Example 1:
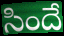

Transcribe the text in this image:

సిందే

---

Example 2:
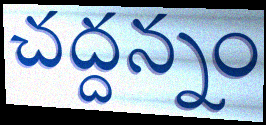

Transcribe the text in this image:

చద్దన్నం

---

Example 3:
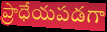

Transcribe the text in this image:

ప్రాధేయపడగా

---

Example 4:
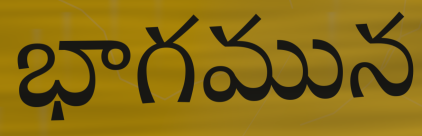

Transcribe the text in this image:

భాగమున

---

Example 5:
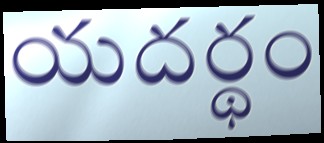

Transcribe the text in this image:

యదర్థం